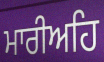
ਮਾਰੀਅਹਿ